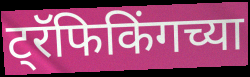
ट्रॅफिकिंगच्या